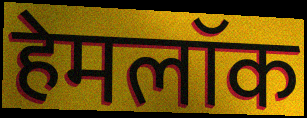
हेमलॉक